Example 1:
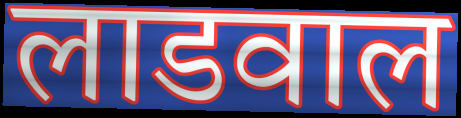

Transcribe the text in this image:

लाडवाल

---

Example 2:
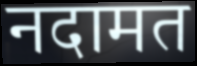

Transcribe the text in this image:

नदामत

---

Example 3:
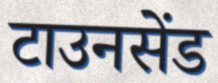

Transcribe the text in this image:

टाउनसेंड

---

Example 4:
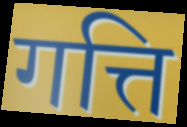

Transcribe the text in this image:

गत्ति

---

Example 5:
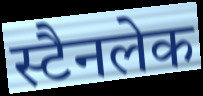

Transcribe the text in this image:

स्टैनलेक